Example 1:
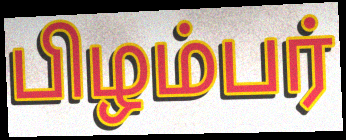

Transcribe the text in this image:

பிழம்பர்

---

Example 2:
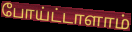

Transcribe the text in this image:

போய்ட்டாளாம்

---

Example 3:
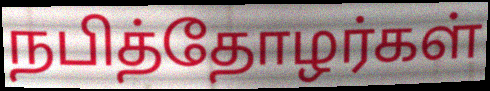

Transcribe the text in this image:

நபித்தோழர்கள்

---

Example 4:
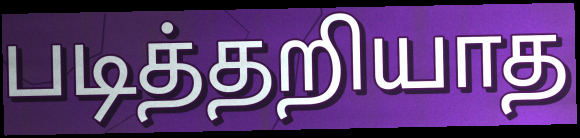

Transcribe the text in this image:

படித்தறியாத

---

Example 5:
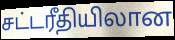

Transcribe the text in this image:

சட்டரீதியிலான